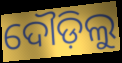
ଦୌଡ଼ିଲୁ